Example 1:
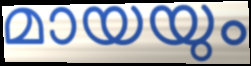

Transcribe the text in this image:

മായയും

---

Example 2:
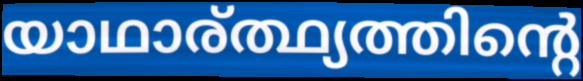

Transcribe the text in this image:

യാഥാര്ത്ഥ്യത്തിന്റെ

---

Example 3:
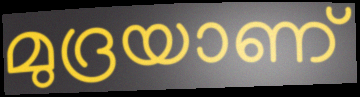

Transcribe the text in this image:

മുദ്രയാണ്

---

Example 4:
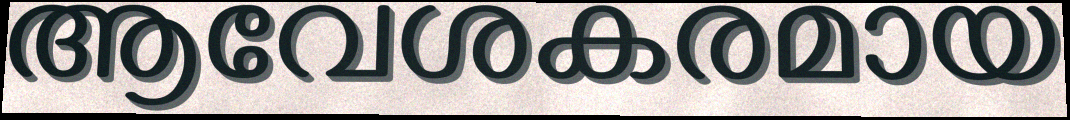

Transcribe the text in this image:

ആവേശകരമായ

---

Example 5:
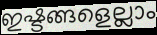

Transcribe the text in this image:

ഇഷ്ടങ്ങളെല്ലാം